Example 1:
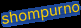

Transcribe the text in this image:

shompurno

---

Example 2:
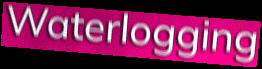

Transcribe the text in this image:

Waterlogging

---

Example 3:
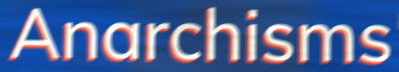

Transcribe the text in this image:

Anarchisms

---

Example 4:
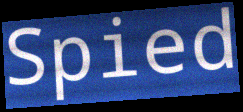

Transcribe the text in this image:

Spied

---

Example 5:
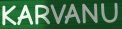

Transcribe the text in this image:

KARVANU